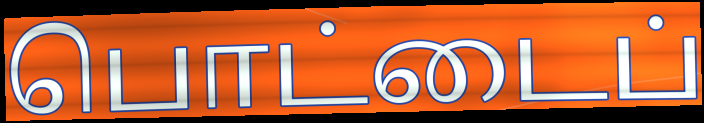
பொட்டைப்